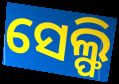
ସେଲ୍ଫି